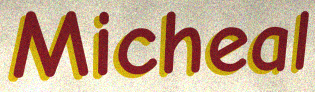
Micheal